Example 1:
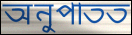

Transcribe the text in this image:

অনুপাতত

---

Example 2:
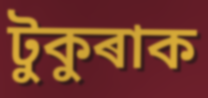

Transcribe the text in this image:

টুকুৰাক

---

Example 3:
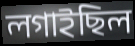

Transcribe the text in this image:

লগাইছিল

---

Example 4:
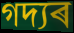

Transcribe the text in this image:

গদ্যৰ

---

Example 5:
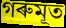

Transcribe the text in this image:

গৰুমূত